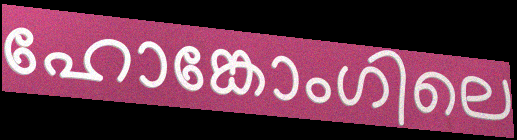
ഹോങ്കോംഗിലെ